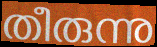
തീരുന്നു